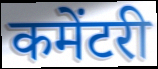
कमेंटरी